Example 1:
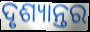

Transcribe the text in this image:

ଦୃଶ୍ୟାନ୍ତର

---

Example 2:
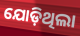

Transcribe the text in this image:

ଯୋଡ଼ିଥିଲା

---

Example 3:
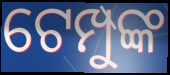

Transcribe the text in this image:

ଟେମ୍ପୁଙ୍କ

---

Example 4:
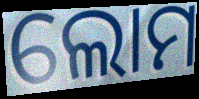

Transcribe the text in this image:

ଲୋମ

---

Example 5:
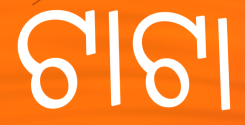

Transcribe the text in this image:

ଟାଟା